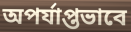
অপর্যাপ্তভাবে